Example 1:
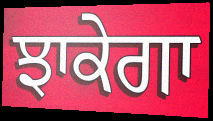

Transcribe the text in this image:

ਝਾਕੇਗਾ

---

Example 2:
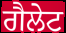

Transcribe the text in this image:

ਗੈਲੇਟ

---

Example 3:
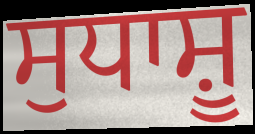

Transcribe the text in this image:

ਸੁਧਾਸ਼ੂ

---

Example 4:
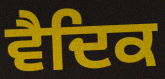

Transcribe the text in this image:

ਵੈਦਿਕ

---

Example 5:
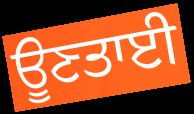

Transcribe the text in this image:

ਊਣਤਾਈ